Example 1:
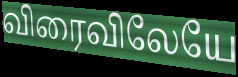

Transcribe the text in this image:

விரைவிலேயே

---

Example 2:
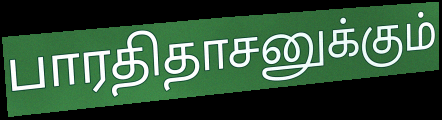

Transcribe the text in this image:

பாரதிதாசனுக்கும்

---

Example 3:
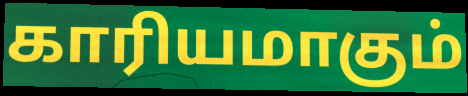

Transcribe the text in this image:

காரியமாகும்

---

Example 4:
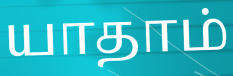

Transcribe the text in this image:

யாதாம்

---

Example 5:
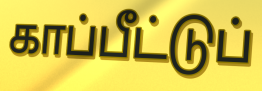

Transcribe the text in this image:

காப்பீட்டுப்